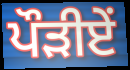
ਪੌੜੀਏਂ